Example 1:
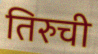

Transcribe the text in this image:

तिरुची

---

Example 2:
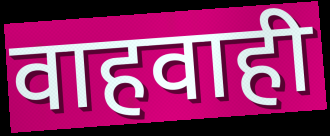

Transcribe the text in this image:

वाहवाही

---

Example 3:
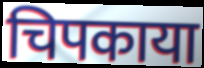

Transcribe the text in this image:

चिपकाया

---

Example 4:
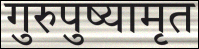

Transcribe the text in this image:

गुरुपुष्यामृत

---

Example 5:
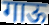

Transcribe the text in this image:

गाऊ